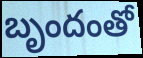
బృందంతో